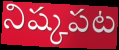
నిష్కపట